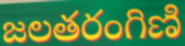
జలతరంగిణి